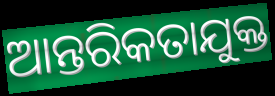
ଆନ୍ତରିକତାଯୁକ୍ତ